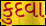
કુદવા